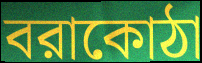
বরাকোঠা